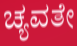
ಚ್ಯವತೇ